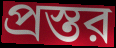
প্রস্তর